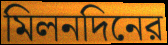
মিলনদিনের